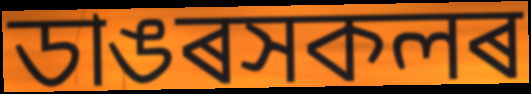
ডাঙৰসকলৰ